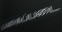
பகைப்படை